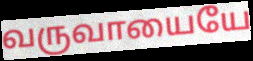
வருவாயையே